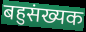
बहुसंख्यक